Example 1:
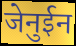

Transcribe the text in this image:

जेनुईन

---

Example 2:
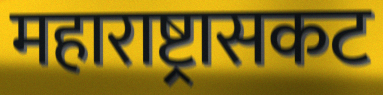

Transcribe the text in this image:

महाराष्ट्रासकट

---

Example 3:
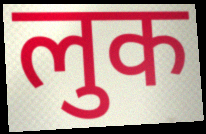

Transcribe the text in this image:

लुक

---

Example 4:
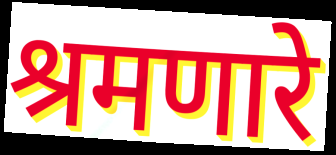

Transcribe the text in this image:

श्रमणारे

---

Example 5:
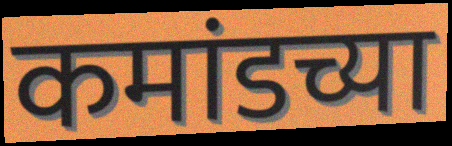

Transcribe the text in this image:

कमांडच्या